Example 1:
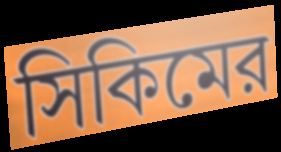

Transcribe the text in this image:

সিকিমের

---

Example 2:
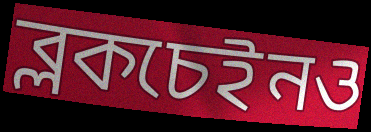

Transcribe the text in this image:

ব্লকচেইনও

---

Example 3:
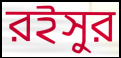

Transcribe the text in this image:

রইসুর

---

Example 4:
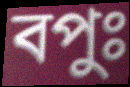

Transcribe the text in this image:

বপুঃ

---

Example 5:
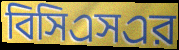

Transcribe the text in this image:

বিসিএসএর